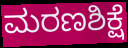
ಮರಣಶಿಕ್ಷೆ